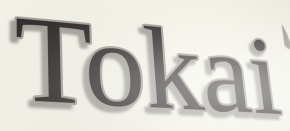
Tokai